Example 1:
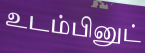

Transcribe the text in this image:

உடம்பினுட்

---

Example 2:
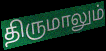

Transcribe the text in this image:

திருமாலும்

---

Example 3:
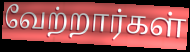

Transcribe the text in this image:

வேற்றார்கள்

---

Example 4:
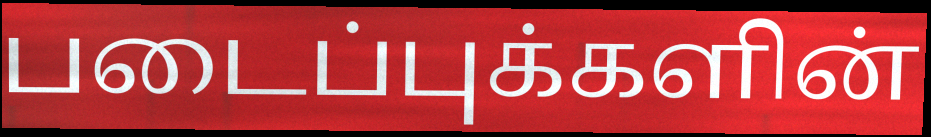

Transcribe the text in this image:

படைப்புக்களின்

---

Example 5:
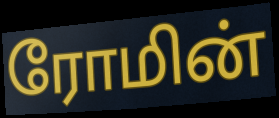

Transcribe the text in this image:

ரோமின்